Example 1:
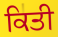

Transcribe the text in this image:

ਕਿਤੀ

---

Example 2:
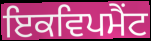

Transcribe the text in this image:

ਇਕਵਿਪਮੈਂਟ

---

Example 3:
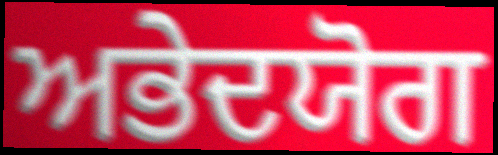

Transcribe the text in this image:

ਅਭੇਦਯੋਗ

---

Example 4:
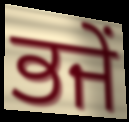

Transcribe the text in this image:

ਭਜੇਂ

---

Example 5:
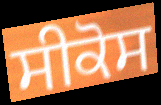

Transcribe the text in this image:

ਸੀਕੋਸ